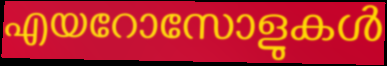
എയറോസോളുകൾ